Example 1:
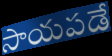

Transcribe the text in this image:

సాయపడే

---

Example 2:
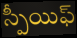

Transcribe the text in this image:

స్పీయిఫ్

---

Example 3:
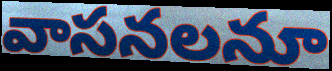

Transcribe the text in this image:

వాసనలనూ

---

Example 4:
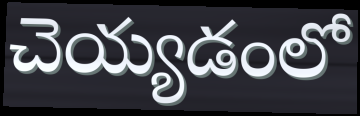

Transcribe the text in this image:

చెయ్యడంలో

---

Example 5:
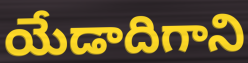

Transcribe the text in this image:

యేడాదిగాని